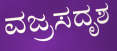
ವಜ್ರಸದೃಶ